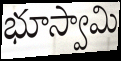
భూస్వామి